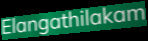
Elangathilakam